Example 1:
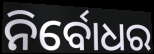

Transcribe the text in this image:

ନିର୍ବୋଧର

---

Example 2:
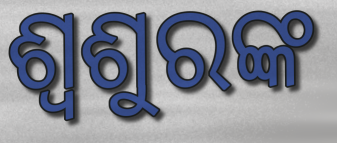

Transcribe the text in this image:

ଶ୍ୱଶୁରଙ୍କ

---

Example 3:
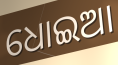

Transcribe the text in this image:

ଧୋଇଆ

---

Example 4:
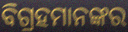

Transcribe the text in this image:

ବିଗ୍ରହମାନଙ୍କର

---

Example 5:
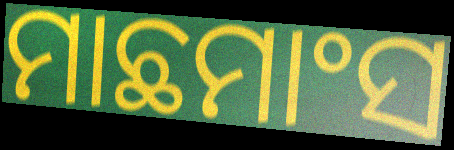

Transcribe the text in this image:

ମାଛମାଂସ